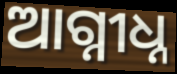
ଆଗ୍ନୀଧ୍ନ